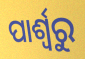
ପାର୍ଶ୍ଵରୁ